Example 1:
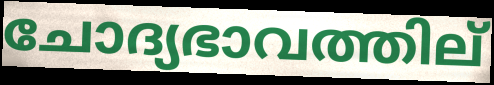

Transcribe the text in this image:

ചോദ്യഭാവത്തില്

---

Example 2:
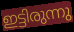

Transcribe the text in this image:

ഇട്ടിരുന്നു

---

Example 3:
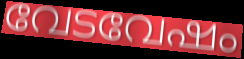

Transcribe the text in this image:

വേടവേഷം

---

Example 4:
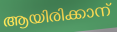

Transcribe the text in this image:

ആയിരിക്കാന്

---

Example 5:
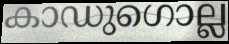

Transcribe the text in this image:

കാഡുഗൊല്ല